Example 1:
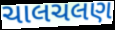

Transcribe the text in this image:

ચાલચલણ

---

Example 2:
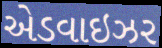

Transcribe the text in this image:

એડવાઇઝર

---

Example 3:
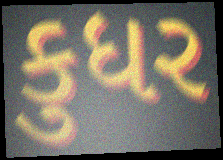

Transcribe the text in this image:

કુધર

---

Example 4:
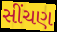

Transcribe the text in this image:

સીંચણ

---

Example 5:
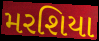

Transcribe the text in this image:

મરશિયા